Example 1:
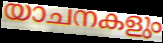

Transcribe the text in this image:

യാചനകളും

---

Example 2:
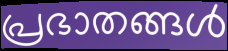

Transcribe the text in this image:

പ്രഭാതങ്ങൾ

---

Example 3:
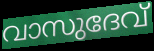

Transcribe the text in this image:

വാസുദേവ്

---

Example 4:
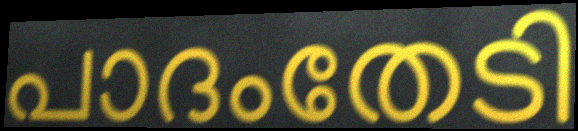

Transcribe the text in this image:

പാദംതേടി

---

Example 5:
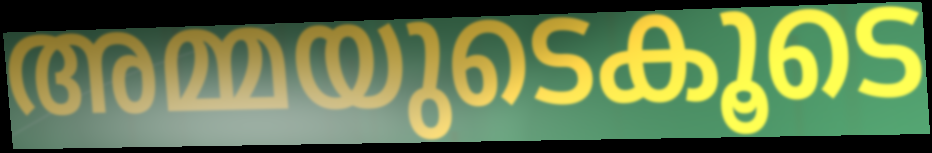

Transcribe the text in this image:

അമ്മയുടെകൂടെ